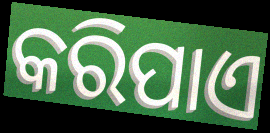
କରିପାଏ